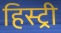
हिस्ट्री